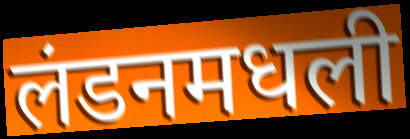
लंडनमधली